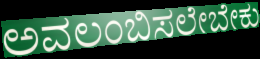
ಅವಲಂಬಿಸಲೇಬೇಕು